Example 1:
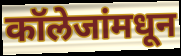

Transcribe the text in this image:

कॉलेजांमधून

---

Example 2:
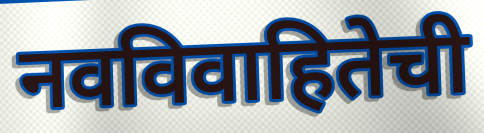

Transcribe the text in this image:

नवविवाहितेची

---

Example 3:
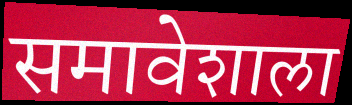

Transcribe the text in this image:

समावेशाला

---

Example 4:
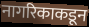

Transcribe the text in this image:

नागरिकाकडून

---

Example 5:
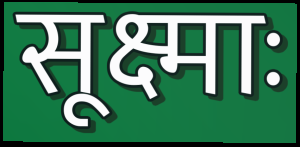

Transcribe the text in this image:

सूक्ष्माः